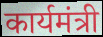
कार्यमंत्री